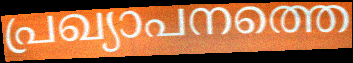
പ്രഖ്യാപനത്തെ